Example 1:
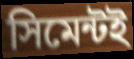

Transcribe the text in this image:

সিমেন্টই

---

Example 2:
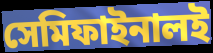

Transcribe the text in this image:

সেমিফাইনালই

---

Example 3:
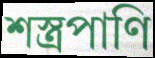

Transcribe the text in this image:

শস্ত্রপাণি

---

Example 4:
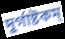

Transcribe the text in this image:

দুর্গাষ্টকম্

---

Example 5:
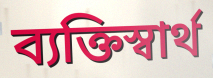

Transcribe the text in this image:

ব্যক্তিস্বার্থ